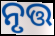
ନୃତ୍ତ